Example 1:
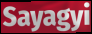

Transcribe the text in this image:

Sayagyi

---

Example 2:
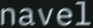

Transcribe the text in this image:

navel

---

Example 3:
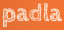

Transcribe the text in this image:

padla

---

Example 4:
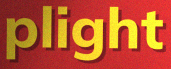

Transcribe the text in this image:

plight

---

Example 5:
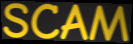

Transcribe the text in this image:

SCAM